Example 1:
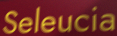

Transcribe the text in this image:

Seleucia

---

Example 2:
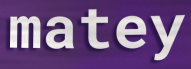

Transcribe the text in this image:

matey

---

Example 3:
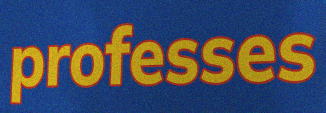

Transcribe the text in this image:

professes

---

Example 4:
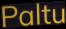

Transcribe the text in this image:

Paltu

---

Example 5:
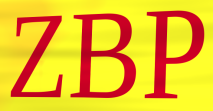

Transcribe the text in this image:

ZBP